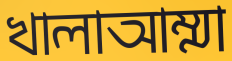
খালাআম্মা